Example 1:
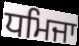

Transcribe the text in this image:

ਧਮਿਜਾ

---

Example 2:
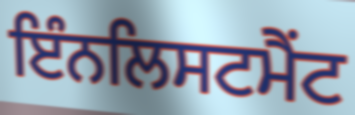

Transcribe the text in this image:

ਇੰਨਲਿਸਟਮੈਂਟ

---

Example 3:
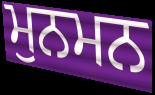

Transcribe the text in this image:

ਮੁਨਮਨ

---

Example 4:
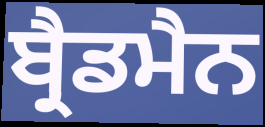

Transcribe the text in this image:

ਬ੍ਰੈਡਮੈਨ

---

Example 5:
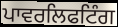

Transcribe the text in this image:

ਪਾਵਰਲਿਫਟਿੰਗ